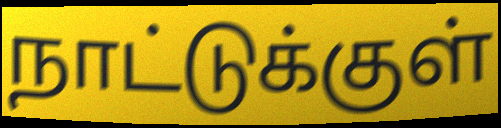
நாட்டுக்குள்